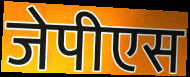
जेपीएस